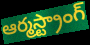
ఆర్మస్ట్రాంగ్